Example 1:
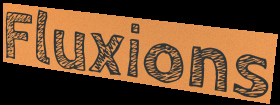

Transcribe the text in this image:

Fluxions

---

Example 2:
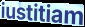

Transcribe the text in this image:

iustitiam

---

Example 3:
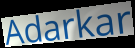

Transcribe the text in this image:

Adarkar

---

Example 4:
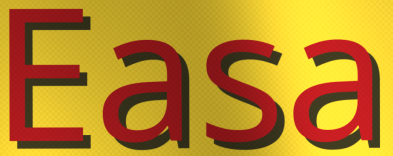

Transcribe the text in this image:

Easa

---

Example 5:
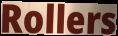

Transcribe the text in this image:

Rollers